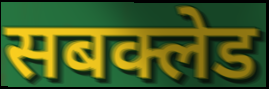
सबक्लेड